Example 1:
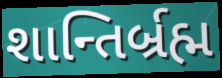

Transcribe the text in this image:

શાન્તિર્બ્રહ્મ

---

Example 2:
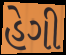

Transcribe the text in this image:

હેગી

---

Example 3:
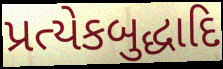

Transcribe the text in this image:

પ્રત્યેકબુદ્ધાદિ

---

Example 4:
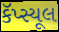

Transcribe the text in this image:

કૅપ્સ્યૂલ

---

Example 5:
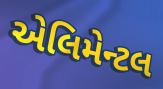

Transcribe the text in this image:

એલિમેન્ટલ